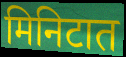
मिनिटात